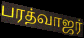
பரத்வாஜர்